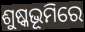
ଶୁଷ୍କଭୂମିରେ